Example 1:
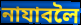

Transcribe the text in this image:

নাযাবলৈ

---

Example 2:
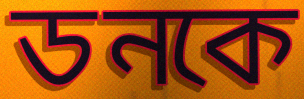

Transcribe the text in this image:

ডনকে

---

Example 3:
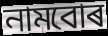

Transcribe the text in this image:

নামবোৰ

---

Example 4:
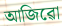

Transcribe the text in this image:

আজিৱো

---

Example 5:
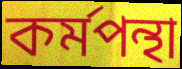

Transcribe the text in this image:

কৰ্মপন্থা